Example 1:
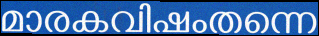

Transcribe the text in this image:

മാരകവിഷംതന്നെ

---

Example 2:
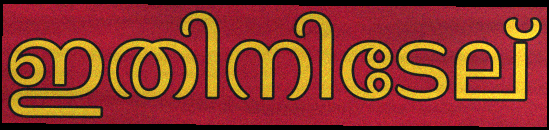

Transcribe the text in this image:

ഇതിനിടേല്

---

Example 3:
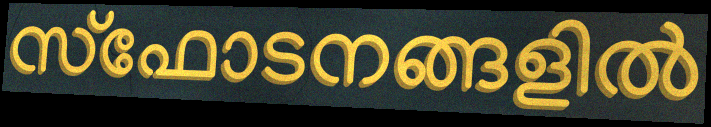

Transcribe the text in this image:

സ്ഫോടനങ്ങളിൽ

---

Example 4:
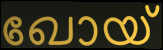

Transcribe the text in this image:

ഖോയ്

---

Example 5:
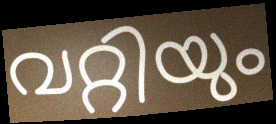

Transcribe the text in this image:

വറ്റിയും